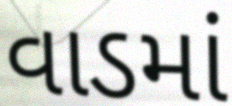
વાડમાં